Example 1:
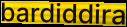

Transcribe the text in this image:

bardiddira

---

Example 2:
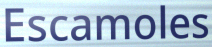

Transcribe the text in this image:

Escamoles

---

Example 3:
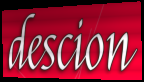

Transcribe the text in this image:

descion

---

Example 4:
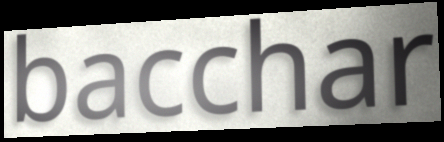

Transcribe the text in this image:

bacchar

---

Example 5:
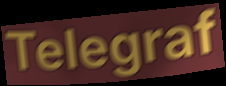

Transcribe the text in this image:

Telegraf